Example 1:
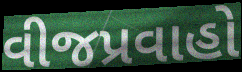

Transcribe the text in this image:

વીજપ્રવાહો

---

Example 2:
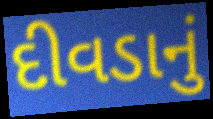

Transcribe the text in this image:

દીવડાનું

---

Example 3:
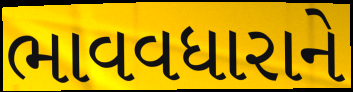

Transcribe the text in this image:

ભાવવધારાને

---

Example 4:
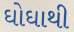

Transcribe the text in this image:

ઘોઘાથી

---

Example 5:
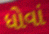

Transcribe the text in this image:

ધોવાં